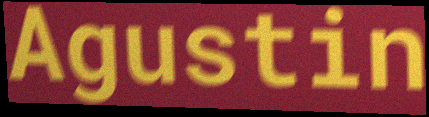
Agustin